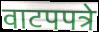
वाटपपत्रे